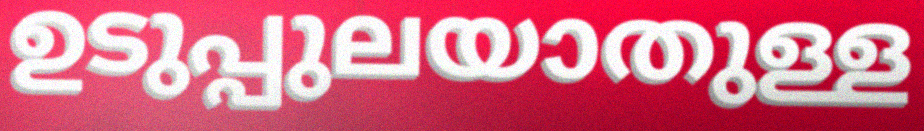
ഉടുപ്പുലയാതുള്ള